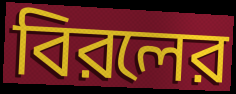
বিরলের